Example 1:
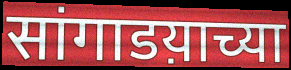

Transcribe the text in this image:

सांगाडय़ाच्या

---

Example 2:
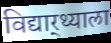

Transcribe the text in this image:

विद्यार्थ्याला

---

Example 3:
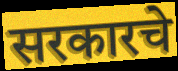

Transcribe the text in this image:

सरकारचे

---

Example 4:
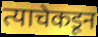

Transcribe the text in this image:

त्याचेकडून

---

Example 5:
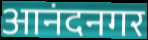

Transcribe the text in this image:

आनंदनगर